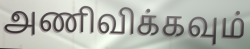
அணிவிக்கவும்